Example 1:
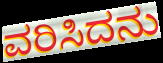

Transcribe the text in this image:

ವರಿಸಿದನು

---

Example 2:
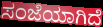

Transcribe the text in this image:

ಸಂಜೆಯಾಗಿದೆ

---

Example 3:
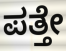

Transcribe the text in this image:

ಪತ್ತೇ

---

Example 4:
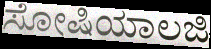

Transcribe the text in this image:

ಸೋಷಿಯಾಲಜಿ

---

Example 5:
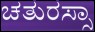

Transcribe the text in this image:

ಚತುರಸ್ಸಾ